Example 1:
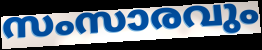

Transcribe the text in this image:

സംസാരവും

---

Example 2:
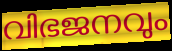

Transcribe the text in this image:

വിഭജനവും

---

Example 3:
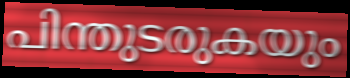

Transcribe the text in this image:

പിന്തുടരുകയും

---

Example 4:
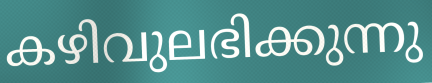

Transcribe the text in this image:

കഴിവുലഭിക്കുന്നു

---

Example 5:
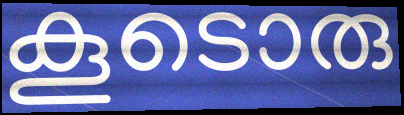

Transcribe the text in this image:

കൂടൊരു